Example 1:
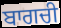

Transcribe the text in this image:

ਬਾਗਚੀ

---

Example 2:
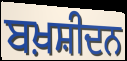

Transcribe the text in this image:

ਬਖ਼ਸ਼ੀਦਨ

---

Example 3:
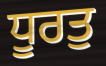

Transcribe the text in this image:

ਧੂਰਤੁ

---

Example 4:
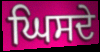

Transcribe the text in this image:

ਘਿਸਦੇ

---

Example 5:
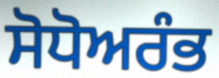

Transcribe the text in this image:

ਸੋਧੋਅਰੰਭ